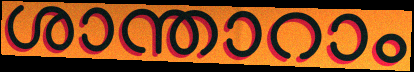
ശാന്താറാം